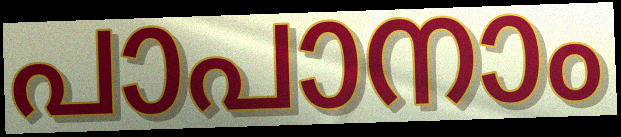
പാപാനാം